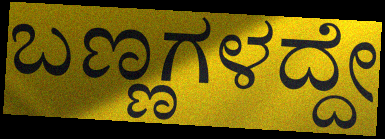
ಬಣ್ಣಗಳದ್ದೇ